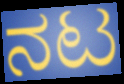
ನಟ